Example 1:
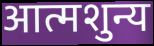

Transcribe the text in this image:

आत्मशुन्य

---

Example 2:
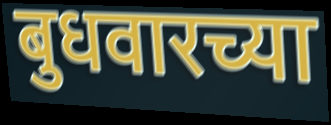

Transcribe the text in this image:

बुधवारच्या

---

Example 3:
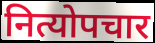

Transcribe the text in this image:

नित्योपचार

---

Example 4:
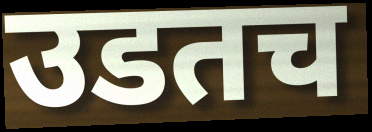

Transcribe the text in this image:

उडतच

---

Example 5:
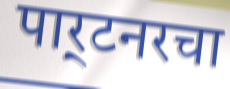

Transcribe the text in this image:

पार्टनरचा